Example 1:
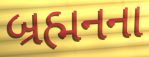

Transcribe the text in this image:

બ્રહ્મનના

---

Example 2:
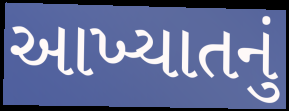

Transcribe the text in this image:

આખ્યાતનું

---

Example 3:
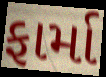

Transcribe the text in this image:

ફાર્મા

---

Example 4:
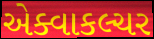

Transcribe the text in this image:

એક્વાકલ્ચર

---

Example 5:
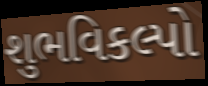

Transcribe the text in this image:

શુભવિકલ્પો